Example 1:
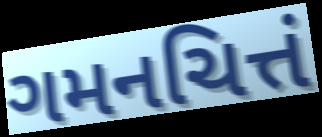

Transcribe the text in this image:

ગમનચિત્તં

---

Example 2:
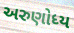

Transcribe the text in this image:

અરુણોધ્ય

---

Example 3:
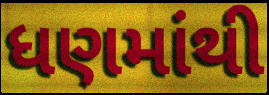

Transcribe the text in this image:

ધણમાંથી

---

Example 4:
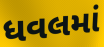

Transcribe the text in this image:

ધવલમાં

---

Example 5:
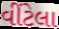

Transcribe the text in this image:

વીંટેલા